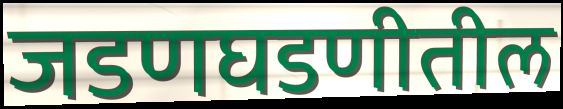
जडणघडणीतील